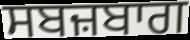
ਸਬਜ਼ਬਾਗ